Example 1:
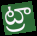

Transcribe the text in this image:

ట్రా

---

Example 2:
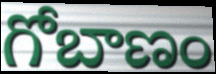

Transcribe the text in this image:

గోబాణం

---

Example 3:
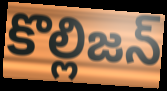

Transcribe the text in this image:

కొల్లిజన్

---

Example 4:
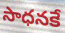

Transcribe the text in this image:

సాధనకే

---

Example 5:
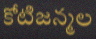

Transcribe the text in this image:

కోటిజన్మల